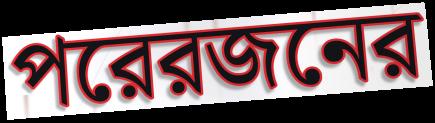
পরেরজনের